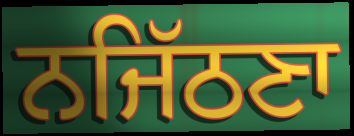
ਨਜਿੱਠਣਾ